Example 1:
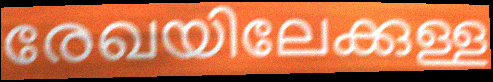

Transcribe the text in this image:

രേഖയിലേക്കുള്ള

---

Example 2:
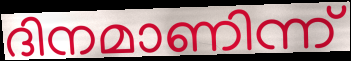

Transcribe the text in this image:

ദിനമാണിന്ന്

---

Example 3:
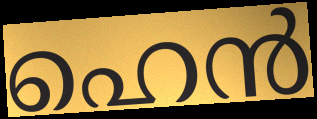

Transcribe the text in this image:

ഹെൻ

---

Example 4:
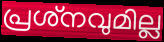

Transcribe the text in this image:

പ്രശ്‌നവുമില്ല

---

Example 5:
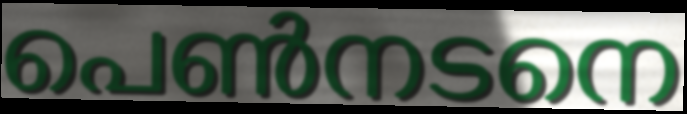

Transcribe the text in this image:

പെൺനടനെ